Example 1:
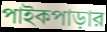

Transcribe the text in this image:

পাইকপাড়ার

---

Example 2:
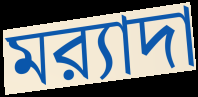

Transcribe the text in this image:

মর‍্যাদা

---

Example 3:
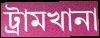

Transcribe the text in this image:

ট্রামখানা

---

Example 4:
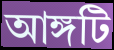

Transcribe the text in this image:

আঙ্গটি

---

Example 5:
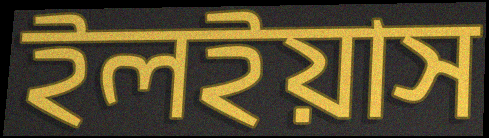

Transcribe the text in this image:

ইলইয়াস